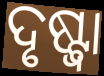
ଦୃଷ୍ଟ୍ବା